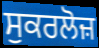
ਸੁਕਰਲੋਜ਼